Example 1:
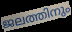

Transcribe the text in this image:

ജലത്തിനും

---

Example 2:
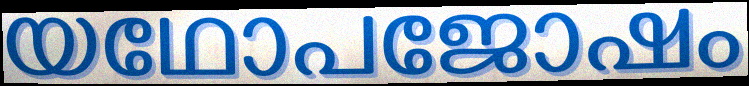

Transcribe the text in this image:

യഥോപജോഷം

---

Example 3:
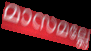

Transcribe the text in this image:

മാസമല്ലേ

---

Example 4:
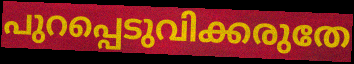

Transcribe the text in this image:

പുറപ്പെടുവിക്കരുതേ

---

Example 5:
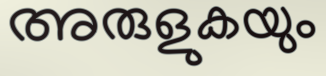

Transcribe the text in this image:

അരുളുകയും